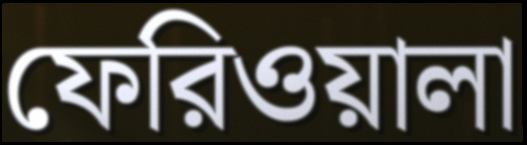
ফেরিওয়ালা